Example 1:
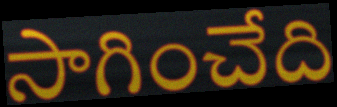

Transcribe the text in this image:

సాగించేది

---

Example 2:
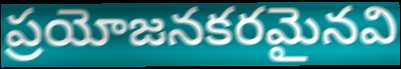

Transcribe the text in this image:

ప్రయోజనకరమైనవి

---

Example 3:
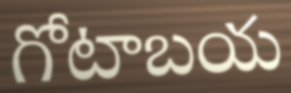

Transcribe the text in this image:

గోటాబయ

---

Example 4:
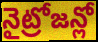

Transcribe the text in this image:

నైట్రోజన్లో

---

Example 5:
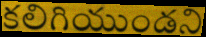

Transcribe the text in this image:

కలిగియుండని